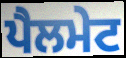
ਪੈਲਮੇਟ